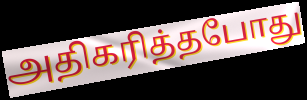
அதிகரித்தபோது